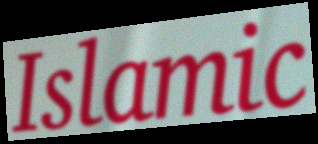
Islamic